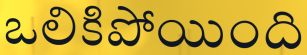
ఒలికిపోయింది